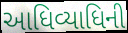
આધિવ્યાધિની